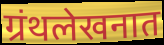
ग्रंथलेखनात